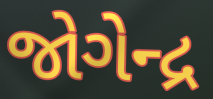
જોગેન્દ્ર